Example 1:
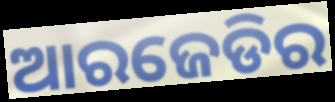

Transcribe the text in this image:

ଆରଜେଡିର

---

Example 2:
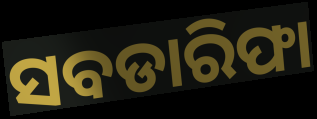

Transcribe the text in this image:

ସବଡାରିଫା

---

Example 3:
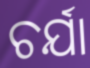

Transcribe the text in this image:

ଚର୍ଯା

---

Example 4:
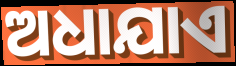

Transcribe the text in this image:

ଅଧାଯାଏ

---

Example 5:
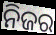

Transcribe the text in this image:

ନିଜର